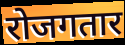
रोजगतार